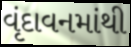
વૃંદાવનમાંથી